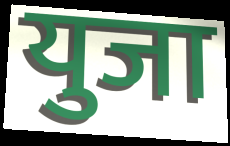
युजा